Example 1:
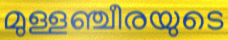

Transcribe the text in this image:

മുള്ളഞ്ചീരയുടെ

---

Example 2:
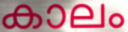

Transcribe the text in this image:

കാലം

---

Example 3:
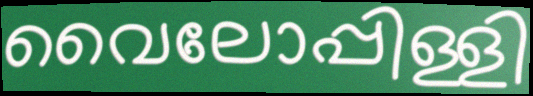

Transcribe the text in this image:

വൈലോപ്പിള്ളി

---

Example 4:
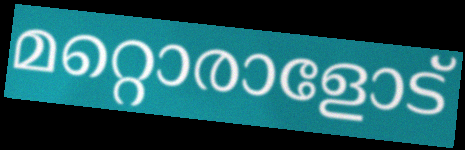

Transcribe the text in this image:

മറ്റൊരാളോട്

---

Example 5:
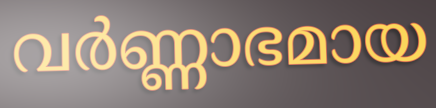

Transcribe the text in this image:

വർണ്ണാഭമായ